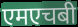
एमएचबी